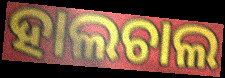
ହାଲଚାଲ